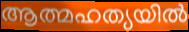
ആത്മഹത്യയിൽ